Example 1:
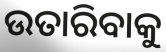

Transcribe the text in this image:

ଉତାରିବାକୁ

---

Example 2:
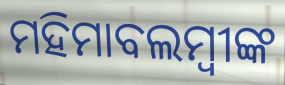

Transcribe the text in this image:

ମହିମାବଲମ୍ବୀଙ୍କ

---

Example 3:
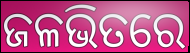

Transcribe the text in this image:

ଜଳଭିତରେ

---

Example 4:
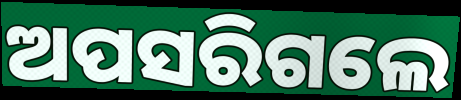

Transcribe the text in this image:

ଅପସରିଗଲେ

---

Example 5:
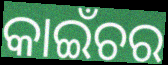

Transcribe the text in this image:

କାଇଁଚର